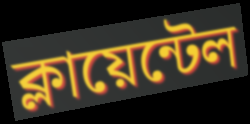
ক্লায়েন্টেল